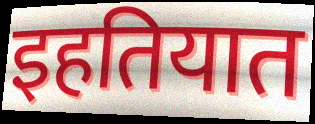
इहतियात